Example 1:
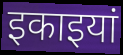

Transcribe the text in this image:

इकाइयां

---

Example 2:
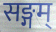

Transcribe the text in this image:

सङ्गम्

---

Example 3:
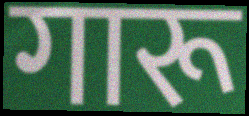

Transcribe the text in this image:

गारू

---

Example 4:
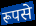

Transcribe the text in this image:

रूपसे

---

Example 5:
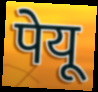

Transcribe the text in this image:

पेयू